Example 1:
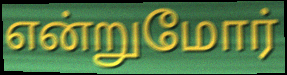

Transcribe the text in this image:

என்றுமோர்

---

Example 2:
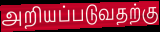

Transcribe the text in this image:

அறியப்படுவதற்கு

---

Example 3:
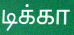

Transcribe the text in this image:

டிக்கா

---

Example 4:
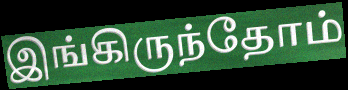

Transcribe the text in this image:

இங்கிருந்தோம்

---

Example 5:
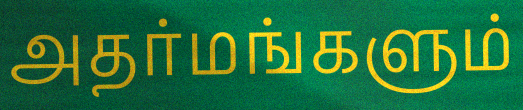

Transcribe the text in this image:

அதர்மங்களும்